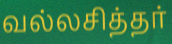
வல்லசித்தர்